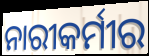
ନାରୀକର୍ମୀର